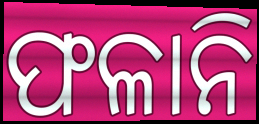
ଫଳାନି